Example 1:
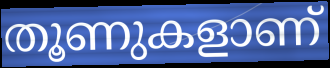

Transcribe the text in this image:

തൂണുകളാണ്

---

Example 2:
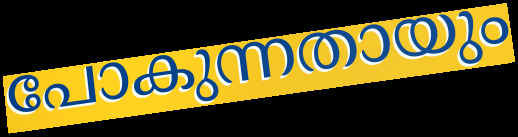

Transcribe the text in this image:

പോകുന്നതായും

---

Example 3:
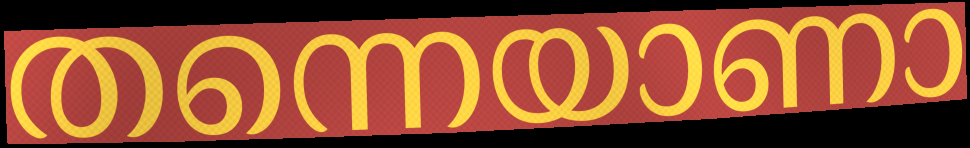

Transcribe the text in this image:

തന്നെയാണാ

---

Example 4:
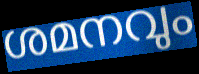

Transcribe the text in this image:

ശമനവും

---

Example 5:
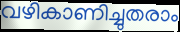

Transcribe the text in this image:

വഴികാണിച്ചുതരാം